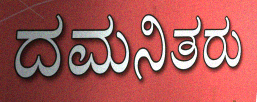
ದಮನಿತರು